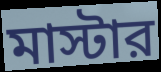
মাস্টার